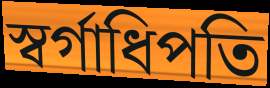
স্বর্গাধিপতি